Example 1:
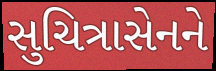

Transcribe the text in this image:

સુચિત્રાસેનને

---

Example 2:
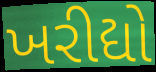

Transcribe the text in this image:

ખરીદ્યો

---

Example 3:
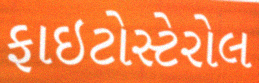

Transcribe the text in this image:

ફાઇટોસ્ટેરોલ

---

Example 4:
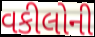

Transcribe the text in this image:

વકીલોની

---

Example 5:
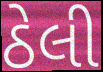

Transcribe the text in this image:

ઠેલી